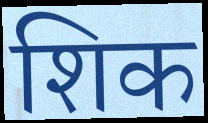
शिक